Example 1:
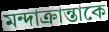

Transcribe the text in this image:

মন্দাক্রান্তাকে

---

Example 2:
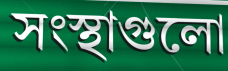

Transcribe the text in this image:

সংস্থাগুলো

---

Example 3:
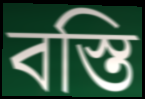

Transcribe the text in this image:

বস্তি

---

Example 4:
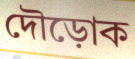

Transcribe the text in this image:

দৌড়োক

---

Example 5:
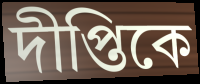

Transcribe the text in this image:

দীপ্তিকে